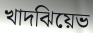
খাদঝিয়েভ